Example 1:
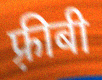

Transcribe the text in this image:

फ़्रीबी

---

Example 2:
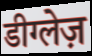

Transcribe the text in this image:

डीग्लेज़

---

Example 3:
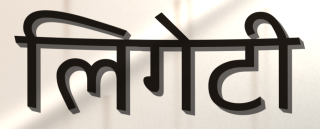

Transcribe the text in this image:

लिगेटी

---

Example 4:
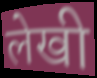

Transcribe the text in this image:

लेखी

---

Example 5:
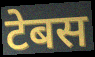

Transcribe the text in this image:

टेबस